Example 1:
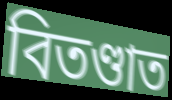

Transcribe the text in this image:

বিতণ্ডাত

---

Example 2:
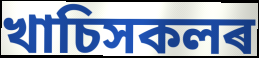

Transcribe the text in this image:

খাচিসকলৰ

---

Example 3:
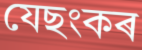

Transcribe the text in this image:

যেছংকৰ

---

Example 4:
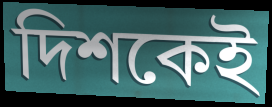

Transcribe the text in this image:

দিশকেই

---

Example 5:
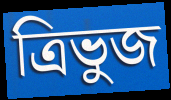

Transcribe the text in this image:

ত্ৰিভুজ